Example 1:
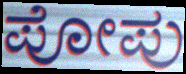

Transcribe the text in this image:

ಪೋಪು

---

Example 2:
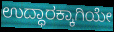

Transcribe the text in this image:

ಉದ್ಧಾರಕ್ಕಾಗಿಯೇ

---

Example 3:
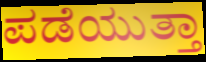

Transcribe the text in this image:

ಪಡೆಯುತ್ತಾ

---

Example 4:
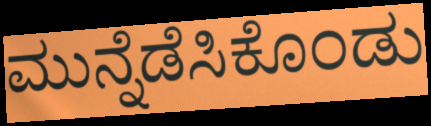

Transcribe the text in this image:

ಮುನ್ನೆಡೆಸಿಕೊಂಡು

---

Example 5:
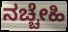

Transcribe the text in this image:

ನಚ್ಚೇಹಿ